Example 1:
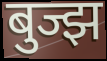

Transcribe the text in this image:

बुज्झ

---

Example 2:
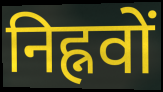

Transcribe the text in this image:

निह्नवों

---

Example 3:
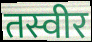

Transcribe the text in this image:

तस्‍वीर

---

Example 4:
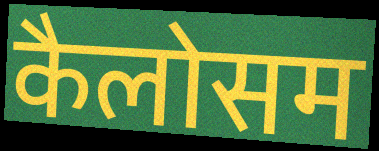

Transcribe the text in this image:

कैलोसम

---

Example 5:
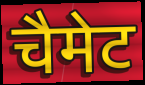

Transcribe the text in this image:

चैमेट